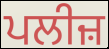
ਪਲੀਜ਼